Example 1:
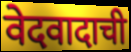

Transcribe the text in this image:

वेदवादाची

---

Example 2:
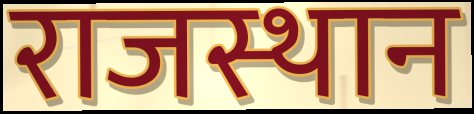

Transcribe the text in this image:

राजस्थान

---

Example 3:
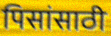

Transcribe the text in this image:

पिसांसाठी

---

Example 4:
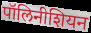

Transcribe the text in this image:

पॉलिनीशियन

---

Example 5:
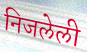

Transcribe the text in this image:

निजलेली